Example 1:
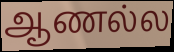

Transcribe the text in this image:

ஆணல்ல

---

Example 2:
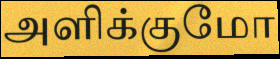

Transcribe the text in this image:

அளிக்குமோ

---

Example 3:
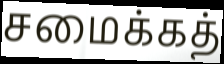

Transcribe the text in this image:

சமைக்கத்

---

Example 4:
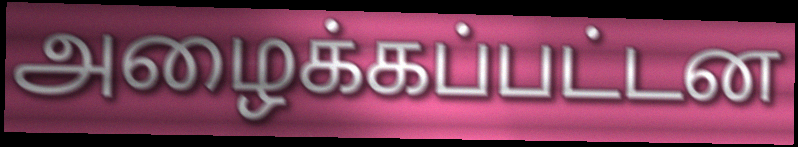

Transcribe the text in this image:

அழைக்கப்பட்டன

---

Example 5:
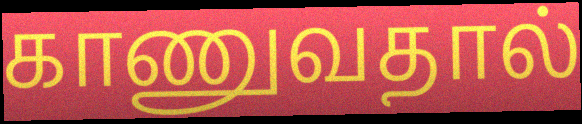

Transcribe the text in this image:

காணுவதால்